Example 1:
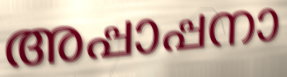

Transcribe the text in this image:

അപ്പാപ്പനാ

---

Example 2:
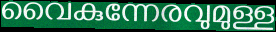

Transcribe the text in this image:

വൈകുന്നേരവുമുള്ള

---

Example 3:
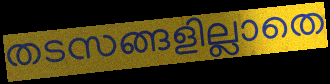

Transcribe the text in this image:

തടസങ്ങളില്ലാതെ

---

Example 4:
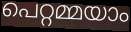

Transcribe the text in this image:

പെറ്റമ്മയാം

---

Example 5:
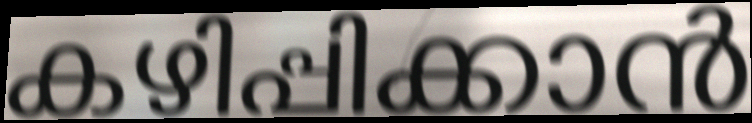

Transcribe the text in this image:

കഴിപ്പിക്കാൻ